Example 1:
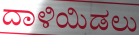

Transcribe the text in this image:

ದಾಳಿಯಿಡಲು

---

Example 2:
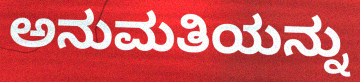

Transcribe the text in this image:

ಅನುಮತಿಯನ್ನು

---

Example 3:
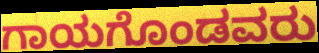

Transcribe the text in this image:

ಗಾಯಗೊಂಡವರು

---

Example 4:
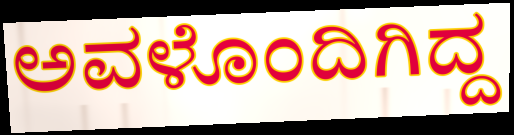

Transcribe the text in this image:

ಅವಳೊಂದಿಗಿದ್ದ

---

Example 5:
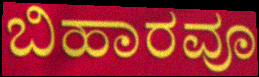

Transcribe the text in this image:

ಬಿಹಾರವೂ